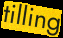
tilling